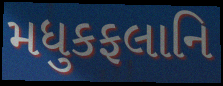
મધુકફલાનિ